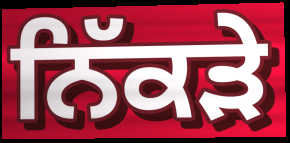
ਨਿੱਕੜੇ